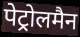
पेट्रोलमैन